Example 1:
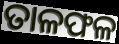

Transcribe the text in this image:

ତାଳଫଳ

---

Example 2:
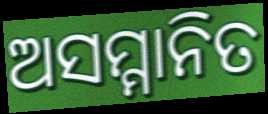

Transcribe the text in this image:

ଅସମ୍ମାନିତ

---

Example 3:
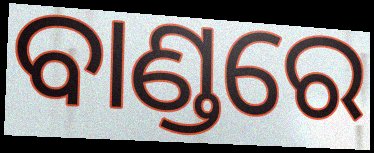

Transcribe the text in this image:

ବାଣ୍ଡରେ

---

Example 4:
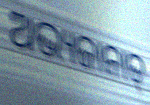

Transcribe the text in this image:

ଅଭ୍ୟଜାନାତ୍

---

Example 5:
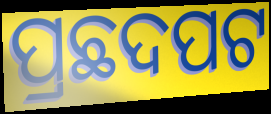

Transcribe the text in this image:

ପ୍ରଛଦପଟ